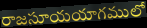
రాజసూయయాగములో